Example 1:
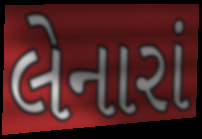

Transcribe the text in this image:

લેનારાં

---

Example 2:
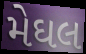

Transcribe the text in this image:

મેઘલ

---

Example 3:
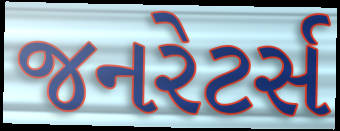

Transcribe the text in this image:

જનરેટર્સ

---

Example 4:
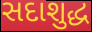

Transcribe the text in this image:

સદાશુદ્ધ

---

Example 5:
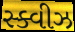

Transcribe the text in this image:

સ્ક્વીઝ